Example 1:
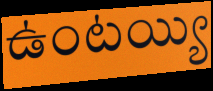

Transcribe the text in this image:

ఉంటయ్యి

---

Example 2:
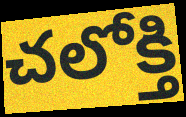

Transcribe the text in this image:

చలోక్తి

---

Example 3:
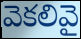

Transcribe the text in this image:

వెకలివై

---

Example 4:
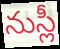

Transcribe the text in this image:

నుస్లీ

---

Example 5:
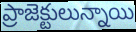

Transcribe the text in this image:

ప్రాజెక్టులున్నాయి